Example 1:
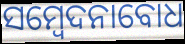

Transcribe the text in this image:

ସମ୍ବେଦନାବୋଧ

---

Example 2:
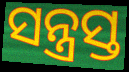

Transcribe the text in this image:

ସନ୍ତ୍ରସ୍ତ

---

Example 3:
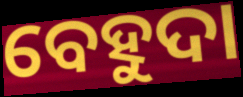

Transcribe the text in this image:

ବେହୁଦା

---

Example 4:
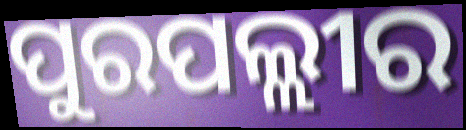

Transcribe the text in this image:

ପୁରପଲ୍ଲୀର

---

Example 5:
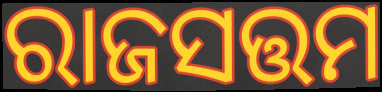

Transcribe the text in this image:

ରାଜସତ୍ତମ